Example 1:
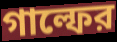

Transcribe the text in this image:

গাল্ফের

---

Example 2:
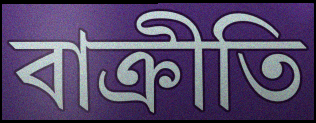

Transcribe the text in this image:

বাক্রীতি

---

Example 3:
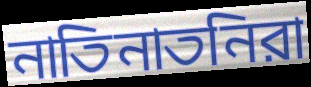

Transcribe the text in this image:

নাতিনাতনিরা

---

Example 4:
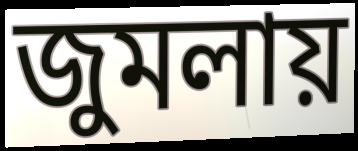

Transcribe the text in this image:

জুমলায়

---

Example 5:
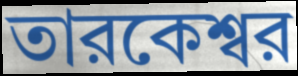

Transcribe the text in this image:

তারকেশ্বর